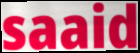
saaid